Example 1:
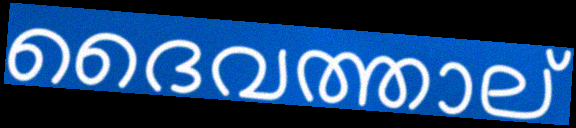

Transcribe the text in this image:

ദൈവത്താല്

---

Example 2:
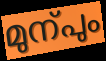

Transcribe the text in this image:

മുന്പും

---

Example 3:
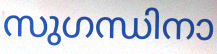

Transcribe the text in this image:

സുഗന്ധിനാ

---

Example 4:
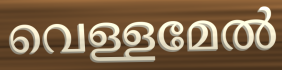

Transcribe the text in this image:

വെള്ളമേൽ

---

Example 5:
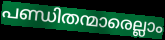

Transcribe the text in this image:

പണ്ഡിതന്മാരെല്ലാം